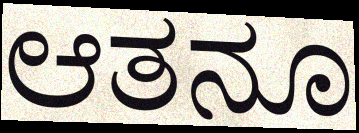
ಆತನೂ